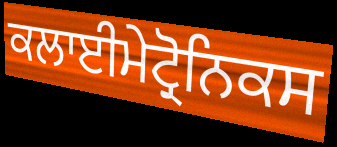
ਕਲਾਈਮੇਟ੍ਰੋਨਿਕਸ